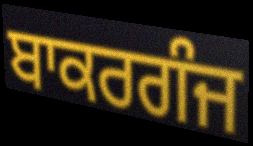
ਬਾਕਰਗੰਜ